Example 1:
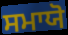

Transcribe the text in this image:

ਸਮਾਯੋ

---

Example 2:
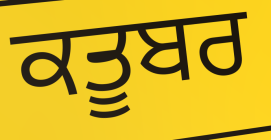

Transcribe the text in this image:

ਕਤੂਬਰ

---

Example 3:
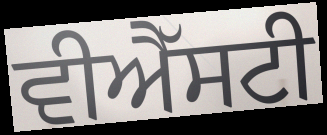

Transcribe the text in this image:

ਵੀਐੱਸਟੀ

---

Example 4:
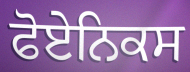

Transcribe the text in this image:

ਫੋਏਨਿਕਸ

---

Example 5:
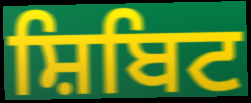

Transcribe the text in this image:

ਸ਼ਿਬਿਟ